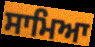
ਸਾਮਿਆ